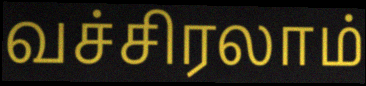
வச்சிரலாம்